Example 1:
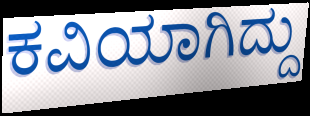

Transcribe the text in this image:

ಕವಿಯಾಗಿದ್ದು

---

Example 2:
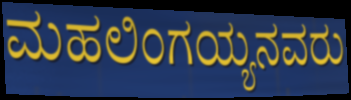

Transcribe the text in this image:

ಮಹಲಿಂಗಯ್ಯನವರು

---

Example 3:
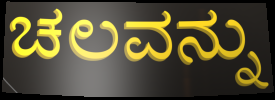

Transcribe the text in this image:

ಚಲವನ್ನು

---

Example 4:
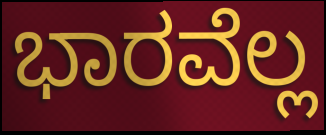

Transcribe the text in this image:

ಭಾರವೆಲ್ಲ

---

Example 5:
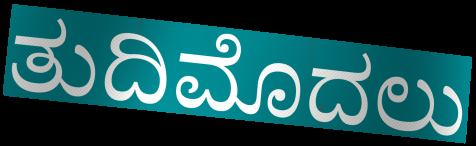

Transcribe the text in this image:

ತುದಿಮೊದಲು